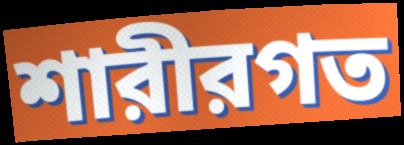
শারীরগত